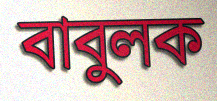
বাবুলক